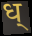
ध्